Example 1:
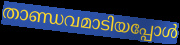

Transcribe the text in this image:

താണ്ഡവമാടിയപ്പോൾ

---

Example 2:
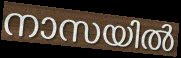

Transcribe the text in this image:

നാസയിൽ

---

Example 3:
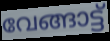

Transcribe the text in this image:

വേങ്ങാട്ട്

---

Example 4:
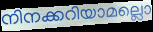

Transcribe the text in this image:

നിനക്കറിയാമല്ലൊ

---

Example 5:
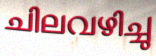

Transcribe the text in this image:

ചിലവഴിച്ചു